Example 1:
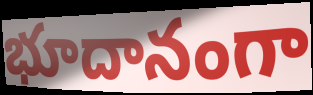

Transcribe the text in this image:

భూదానంగా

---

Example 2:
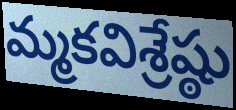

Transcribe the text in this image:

మ్మకవిశ్రేష్ఠు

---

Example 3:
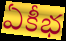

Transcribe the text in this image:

ఏకీభ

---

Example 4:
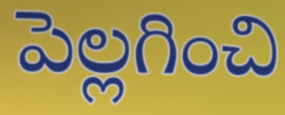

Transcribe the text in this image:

పెల్లగించి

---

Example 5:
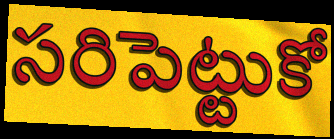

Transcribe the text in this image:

సరిపెట్టుకో